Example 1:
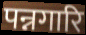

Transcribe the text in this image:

पन्नगारि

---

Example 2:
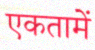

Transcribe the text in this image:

एकतामें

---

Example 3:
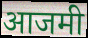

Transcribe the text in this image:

आजमी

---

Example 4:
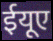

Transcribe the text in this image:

ईयूए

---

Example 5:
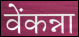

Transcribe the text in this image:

वेंकन्ना